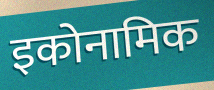
इकोनामिक